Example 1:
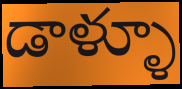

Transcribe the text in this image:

డాళ్ళూ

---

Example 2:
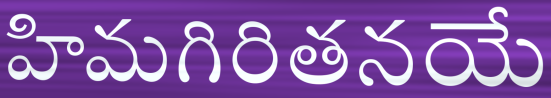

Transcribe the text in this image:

హిమగిరితనయే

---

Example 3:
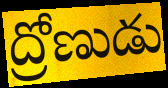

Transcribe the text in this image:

ద్రోణుడు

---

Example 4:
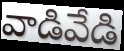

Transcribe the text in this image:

వాడివేడి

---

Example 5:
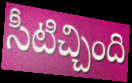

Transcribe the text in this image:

సీటిచ్చింది